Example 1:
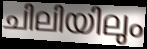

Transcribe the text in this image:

ചിലിയിലും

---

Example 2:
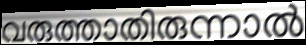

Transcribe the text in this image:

വരുത്താതിരുന്നാൽ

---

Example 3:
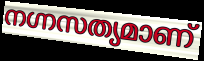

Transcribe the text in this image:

നഗ്നസത്യമാണ്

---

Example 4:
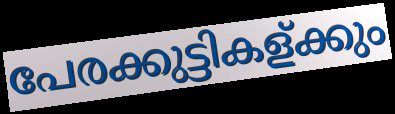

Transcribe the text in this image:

പേരക്കുട്ടികള്ക്കും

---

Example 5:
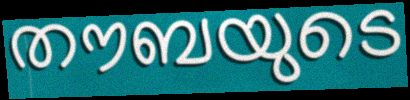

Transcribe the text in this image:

തൗബയുടെ